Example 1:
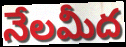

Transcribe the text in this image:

నేలమీద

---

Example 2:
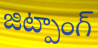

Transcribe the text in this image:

జిట్పాంగ్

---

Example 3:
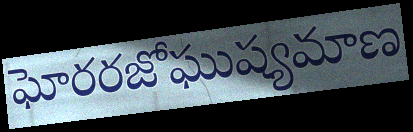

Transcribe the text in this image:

ఘోరరజోఘుష్యమాణ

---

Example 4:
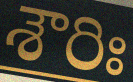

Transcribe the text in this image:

శౌరిః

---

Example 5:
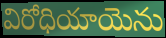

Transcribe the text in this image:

విరోధియాయెను